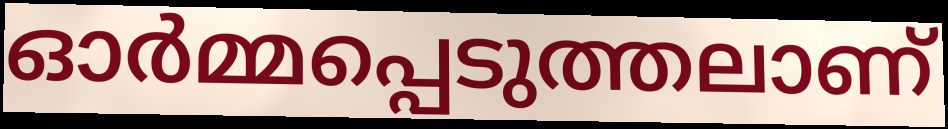
ഓർമ്മപ്പെടുത്തലാണ്